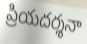
ప్రియదర్శనా